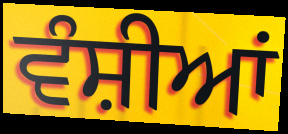
ਵੰਸ਼ੀਆਂ